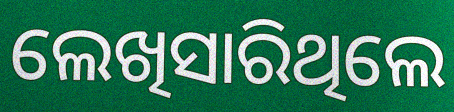
ଲେଖିସାରିଥିଲେ